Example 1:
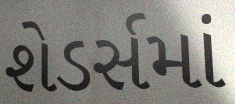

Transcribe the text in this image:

શેડર્સમાં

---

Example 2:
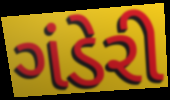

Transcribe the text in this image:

ગંડેરી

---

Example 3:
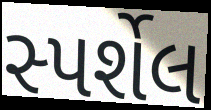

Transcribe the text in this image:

સ્પર્શેલ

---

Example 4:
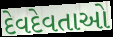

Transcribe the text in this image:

દેવદેવતાઓ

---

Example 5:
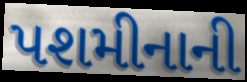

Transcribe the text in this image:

પશમીનાની